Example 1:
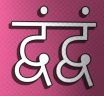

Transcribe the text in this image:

द्वंद्वं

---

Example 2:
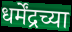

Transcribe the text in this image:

धर्मेंद्रच्या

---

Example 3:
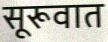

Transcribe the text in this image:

सूरूवात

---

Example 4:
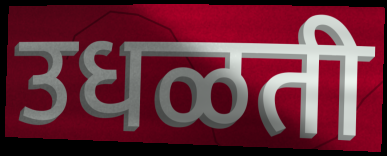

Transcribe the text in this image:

उधळती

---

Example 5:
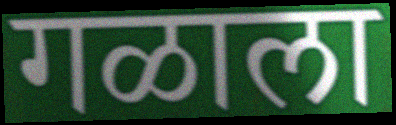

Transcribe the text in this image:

गळाला